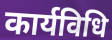
कार्यविधि